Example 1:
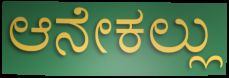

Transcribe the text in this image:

ಆನೇಕಲ್ಲು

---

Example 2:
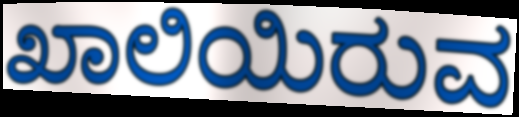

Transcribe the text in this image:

ಖಾಲಿಯಿರುವ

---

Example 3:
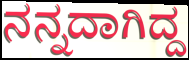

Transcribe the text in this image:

ನನ್ನದಾಗಿದ್ದ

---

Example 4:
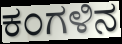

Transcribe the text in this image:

ಕಂಗಳಿನ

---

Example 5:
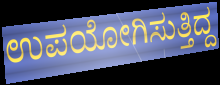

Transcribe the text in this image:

ಉಪಯೋಗಿಸುತ್ತಿದ್ದ